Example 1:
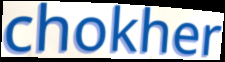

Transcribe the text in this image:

chokher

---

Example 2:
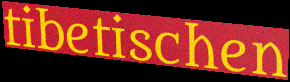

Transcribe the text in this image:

tibetischen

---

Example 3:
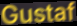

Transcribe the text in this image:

Gustaf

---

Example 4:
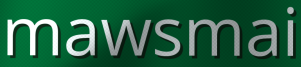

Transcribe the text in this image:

mawsmai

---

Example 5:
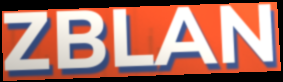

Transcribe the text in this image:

ZBLAN